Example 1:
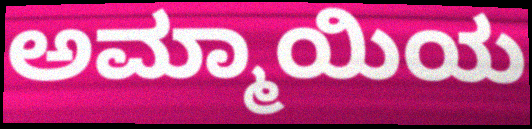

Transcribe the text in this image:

ಅಮ್ಮಾಯಿಯ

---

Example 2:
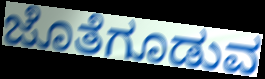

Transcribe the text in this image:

ಜೊತೆಗೂಡುವ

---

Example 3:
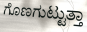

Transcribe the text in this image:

ಗೊಣಗುಟ್ಟುತ್ತಾ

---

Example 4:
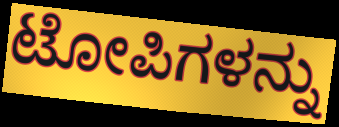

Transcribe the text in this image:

ಟೋಪಿಗಳನ್ನು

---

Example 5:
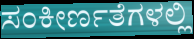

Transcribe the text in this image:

ಸಂಕೀರ್ಣತೆಗಳಲ್ಲಿ